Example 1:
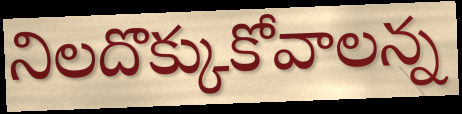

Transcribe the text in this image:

నిలదొక్కుకోవాలన్న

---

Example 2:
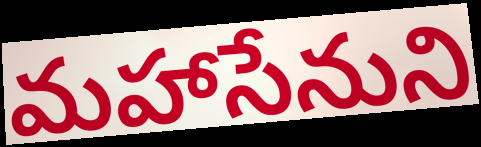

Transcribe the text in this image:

మహాసేనుని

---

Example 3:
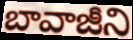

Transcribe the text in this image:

బావాజీని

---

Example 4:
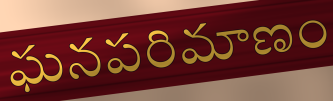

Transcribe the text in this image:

ఘనపరిమాణం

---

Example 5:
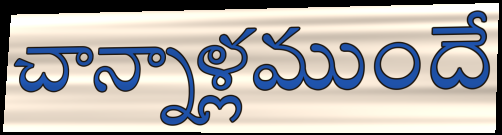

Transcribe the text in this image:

చాన్నాళ్లముందే